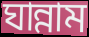
ঘান্নাম